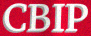
CBIP